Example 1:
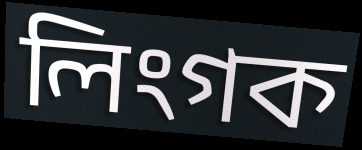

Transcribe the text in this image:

লিংগক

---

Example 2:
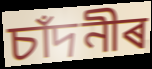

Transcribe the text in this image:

চাঁদনীৰ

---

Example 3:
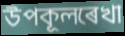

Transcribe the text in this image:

উপকূলৰেখা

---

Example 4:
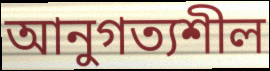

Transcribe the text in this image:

আনুগত্যশীল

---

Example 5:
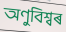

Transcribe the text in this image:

অণুবিশ্বৰ